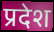
प्रदेश